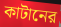
কাটানের